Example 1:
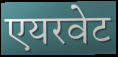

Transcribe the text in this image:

एयरवेट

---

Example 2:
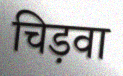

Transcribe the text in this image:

चिड़वा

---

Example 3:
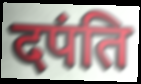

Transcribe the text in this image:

दपंति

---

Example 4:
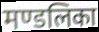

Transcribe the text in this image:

मण्डलिका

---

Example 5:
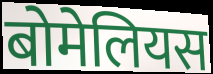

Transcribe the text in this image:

बोमेलियस